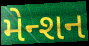
મેન્શન